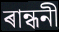
ৰান্ধনী